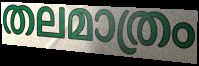
തലമാത്രം